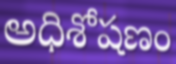
అధిశోషణం